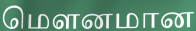
மௌனமான